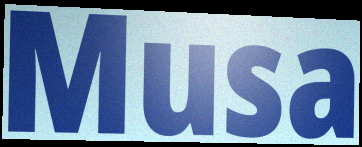
Musa